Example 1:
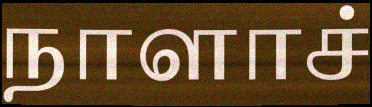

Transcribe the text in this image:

நாளாச்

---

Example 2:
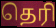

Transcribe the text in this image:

தெரி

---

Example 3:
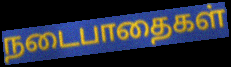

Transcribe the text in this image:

நடைபாதைகள்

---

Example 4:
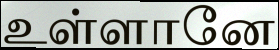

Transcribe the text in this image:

உள்ளானே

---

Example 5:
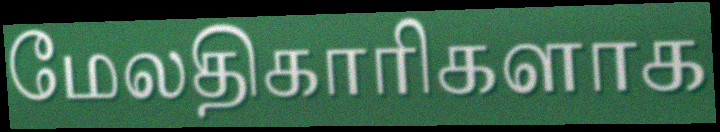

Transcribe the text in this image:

மேலதிகாரிகளாக